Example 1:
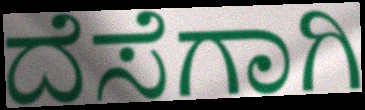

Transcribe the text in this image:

ದೆಸೆಗಾಗಿ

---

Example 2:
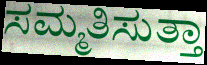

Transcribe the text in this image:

ಸಮ್ಮತಿಸುತ್ತಾ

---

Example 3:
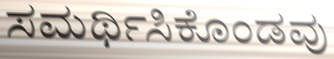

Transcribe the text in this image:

ಸಮರ್ಥಿಸಿಕೊಂಡವು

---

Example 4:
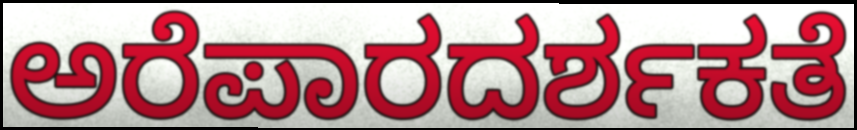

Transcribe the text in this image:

ಅರೆಪಾರದರ್ಶಕತೆ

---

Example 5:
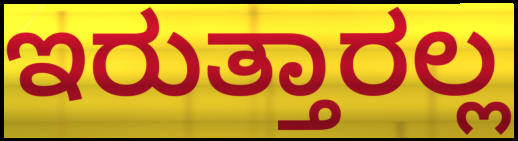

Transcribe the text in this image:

ಇರುತ್ತಾರಲ್ಲ